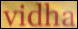
vidha